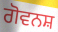
ਗੋਵਨਸ਼